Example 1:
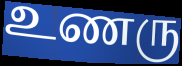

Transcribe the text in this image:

உணரு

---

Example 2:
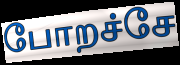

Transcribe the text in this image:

போறச்சே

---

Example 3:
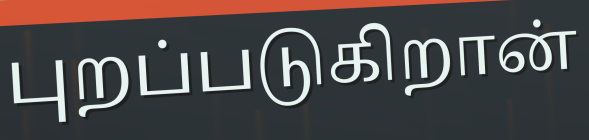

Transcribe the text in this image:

புறப்படுகிறான்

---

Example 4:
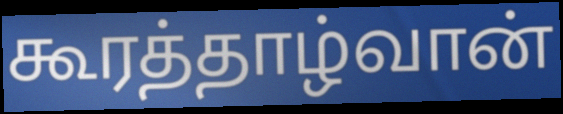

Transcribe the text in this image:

கூரத்தாழ்வான்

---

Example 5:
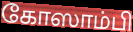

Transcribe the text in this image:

கோஸாம்பி